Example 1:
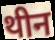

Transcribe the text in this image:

थीन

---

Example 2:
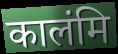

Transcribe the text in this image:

कालंमि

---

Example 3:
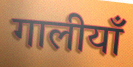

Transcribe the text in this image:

गालीयाँ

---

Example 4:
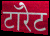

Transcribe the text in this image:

टॉरेट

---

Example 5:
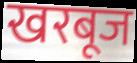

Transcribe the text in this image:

खरबूज